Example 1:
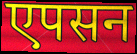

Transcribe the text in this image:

एपसन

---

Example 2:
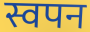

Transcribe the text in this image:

स्वपन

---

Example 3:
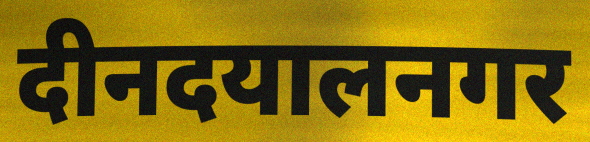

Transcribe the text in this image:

दीनदयालनगर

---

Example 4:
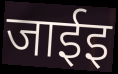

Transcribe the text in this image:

जाईइ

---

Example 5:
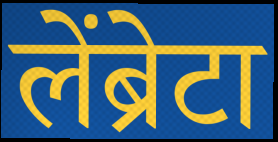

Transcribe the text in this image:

लेंब्रेटा